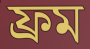
ফ্রম